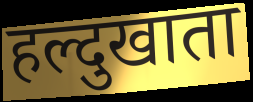
हल्दुखाता